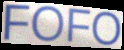
FOFO